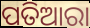
ପତିଆରା